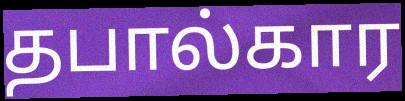
தபால்கார